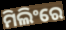
ମିଲିଂରେ